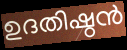
ഉദതിഷ്ഠൻ